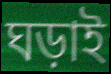
ঘড়াই